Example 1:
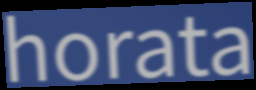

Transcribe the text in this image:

horata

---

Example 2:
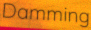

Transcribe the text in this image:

Damming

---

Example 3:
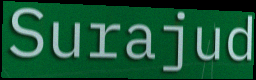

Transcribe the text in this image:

Surajud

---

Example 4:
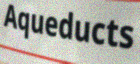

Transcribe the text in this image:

Aqueducts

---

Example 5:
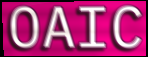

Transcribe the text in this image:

OAIC